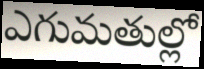
ఎగుమతుల్లో